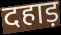
दहाड़